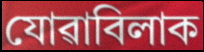
যোৱাবিলাক